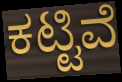
ಕಟ್ಟಿವೆ